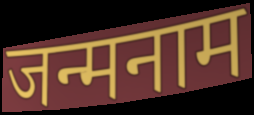
जन्मनाम